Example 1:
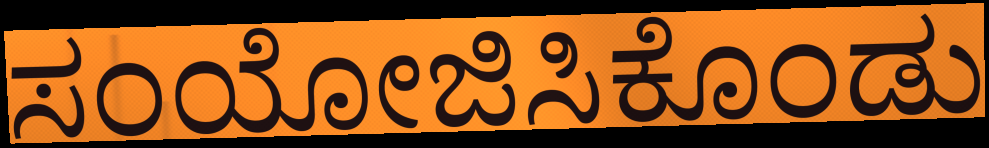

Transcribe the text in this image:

ಸಂಯೋಜಿಸಿಕೊಂಡು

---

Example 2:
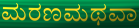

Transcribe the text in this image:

ಮರಣಮಥವಾ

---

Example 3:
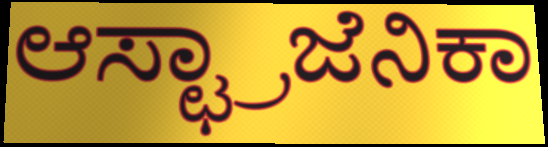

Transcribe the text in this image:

ಆಸ್ಟ್ರಾಜೆನಿಕಾ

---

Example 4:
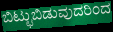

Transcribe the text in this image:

ಬಿಟ್ಟುಬಿಡುವುದರಿಂದ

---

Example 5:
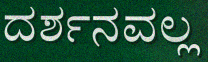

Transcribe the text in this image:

ದರ್ಶನವಲ್ಲ